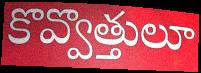
కొవ్వొత్తులూ